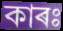
কাৰঃ